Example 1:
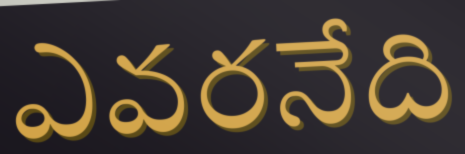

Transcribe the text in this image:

ఎవరనేది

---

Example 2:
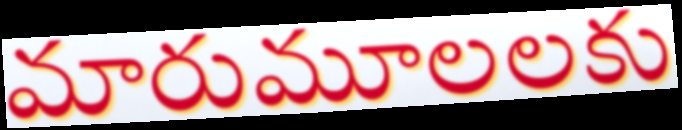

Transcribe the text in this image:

మారుమూలలకు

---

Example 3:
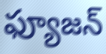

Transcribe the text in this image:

ఫ్యూజన్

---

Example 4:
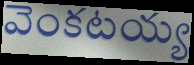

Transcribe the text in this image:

వెంకటయ్య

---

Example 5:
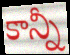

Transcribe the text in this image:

కాన్నీ